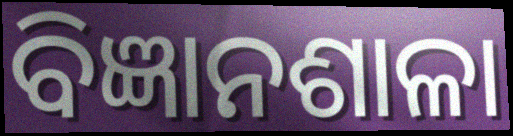
ବିଜ୍ଞାନଶାଳା